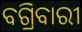
ବଗ୍ରିବାରୀ